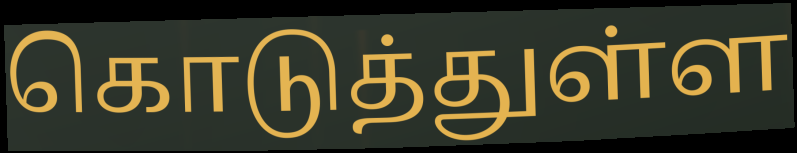
கொடுத்துள்ள